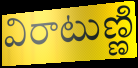
విరాటుణ్ణి